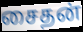
சைதன்